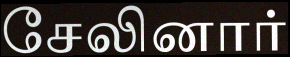
சேலினார்